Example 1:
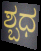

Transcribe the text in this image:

ಶ್ಬಧ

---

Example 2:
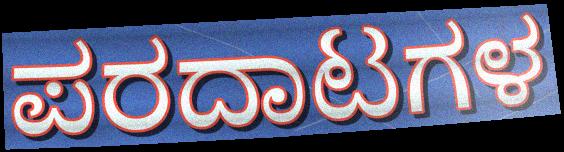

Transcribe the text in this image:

ಪರದಾಟಗಳ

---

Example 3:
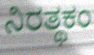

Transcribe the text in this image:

ನಿರತ್ಥಕಂ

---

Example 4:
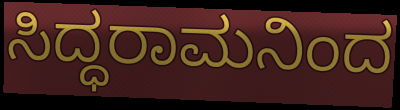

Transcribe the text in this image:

ಸಿದ್ಧರಾಮನಿಂದ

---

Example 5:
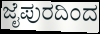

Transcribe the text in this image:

ಜೈಪುರದಿಂದ